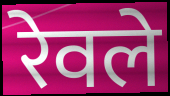
रेवले